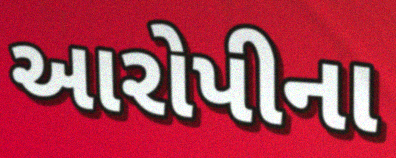
આરોપીના